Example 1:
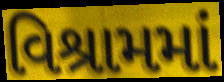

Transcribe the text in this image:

વિશ્રામમાં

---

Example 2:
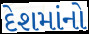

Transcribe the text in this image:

દેશમાંનો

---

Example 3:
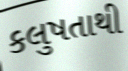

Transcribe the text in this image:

કલુષતાથી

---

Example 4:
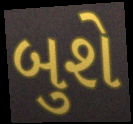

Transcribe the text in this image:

બુશે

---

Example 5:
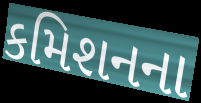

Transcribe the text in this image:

કમિશનના